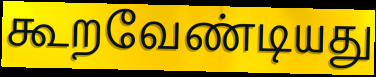
கூறவேண்டியது